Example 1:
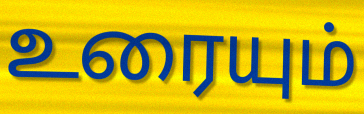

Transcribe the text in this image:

உரையும்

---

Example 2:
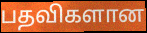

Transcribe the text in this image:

பதவிகளான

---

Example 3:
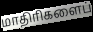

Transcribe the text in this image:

மாதிரிகளைப்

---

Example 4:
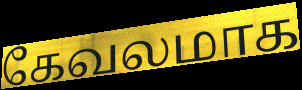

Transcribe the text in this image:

கேவலமாக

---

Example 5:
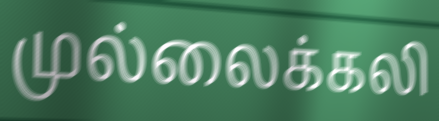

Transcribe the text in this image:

முல்லைக்கலி